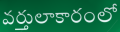
వర్తులాకారంలో